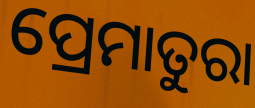
ପ୍ରେମାତୁରା